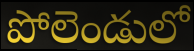
పోలెండులో